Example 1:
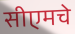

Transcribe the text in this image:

सीएमचे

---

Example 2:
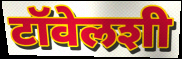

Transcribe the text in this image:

टॉवेलशी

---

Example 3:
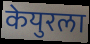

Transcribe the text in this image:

केयुरला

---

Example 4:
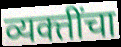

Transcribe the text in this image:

व्यक्‍तींचा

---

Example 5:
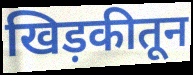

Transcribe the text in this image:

खिड़कीतून